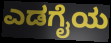
ಎಡಗೈಯ